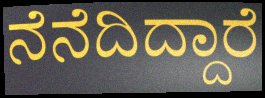
ನೆನೆದಿದ್ದಾರೆ